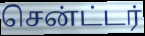
சென்ட்டர்